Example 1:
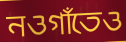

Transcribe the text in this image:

নওগাঁতেও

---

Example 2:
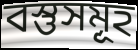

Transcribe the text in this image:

বস্তুসমূহ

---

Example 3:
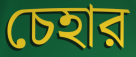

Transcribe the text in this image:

চেহার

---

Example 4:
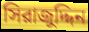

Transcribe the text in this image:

সিরাজুদ্দিন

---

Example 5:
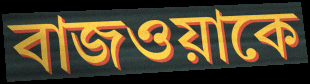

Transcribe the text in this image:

বাজওয়াকে